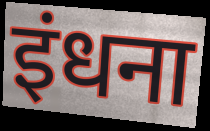
इंधना